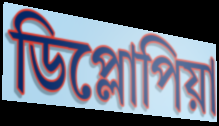
ডিপ্লোপিয়া